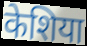
केशिया